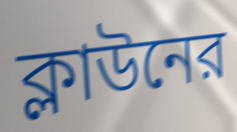
ক্লাউনের